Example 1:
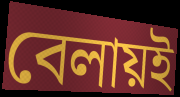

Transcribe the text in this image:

বেলায়ই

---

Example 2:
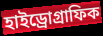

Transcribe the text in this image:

হাইড্রোগ্রাফিক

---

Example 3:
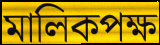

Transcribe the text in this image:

মালিকপক্ষ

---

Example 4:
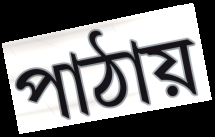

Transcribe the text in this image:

পাঠায়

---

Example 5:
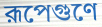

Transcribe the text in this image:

রূপেগুণে